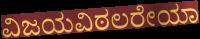
ವಿಜಯವಿಠಲರೇಯಾ